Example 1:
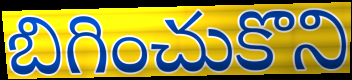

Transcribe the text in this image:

బిగించుకొని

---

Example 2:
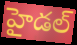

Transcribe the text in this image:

హైడల్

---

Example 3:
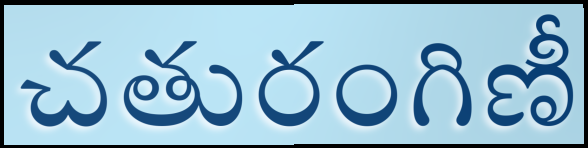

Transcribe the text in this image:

చతురంగిణీ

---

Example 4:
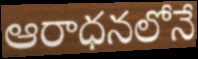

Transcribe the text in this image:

ఆరాధనలోనే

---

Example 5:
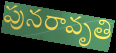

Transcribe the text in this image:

పునరావృతి